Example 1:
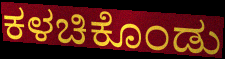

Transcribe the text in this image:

ಕಳಚಿಕೊಂಡು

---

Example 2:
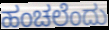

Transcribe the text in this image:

ಹಂಚಲೆಂದು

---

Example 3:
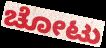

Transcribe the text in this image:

ಚೋಟು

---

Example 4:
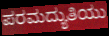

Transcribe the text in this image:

ಪರಮದ್ಯುತಿಯು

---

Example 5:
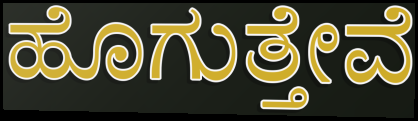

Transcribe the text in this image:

ಹೊಗುತ್ತೇವೆ